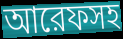
আরেফসহ